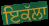
ਇਕੱਲਾ